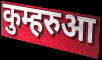
कुम्हरुआ